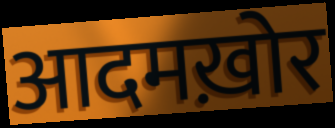
आदमख़ोर